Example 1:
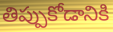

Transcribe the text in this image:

తిప్పుకోడానికి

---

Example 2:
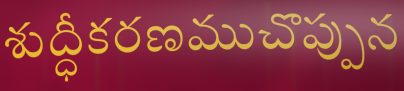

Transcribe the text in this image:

శుద్ధీకరణముచొప్పున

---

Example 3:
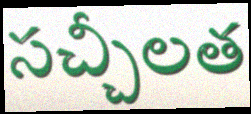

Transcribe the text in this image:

సచ్చీలత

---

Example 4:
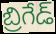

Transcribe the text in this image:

బ్రిగేడ్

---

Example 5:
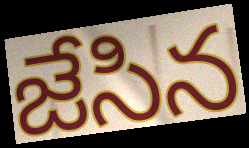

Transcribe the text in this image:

జేసిన